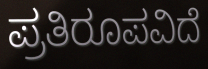
ಪ್ರತಿರೂಪವಿದೆ